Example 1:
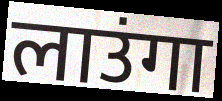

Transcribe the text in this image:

लाउंगा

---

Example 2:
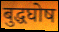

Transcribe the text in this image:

बुद्धघोष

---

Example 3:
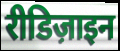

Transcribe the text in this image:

रीडिज़ाइन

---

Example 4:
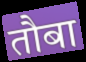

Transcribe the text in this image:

तौबा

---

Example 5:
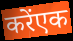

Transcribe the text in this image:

करेंएक